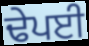
ਢੇਪਈ